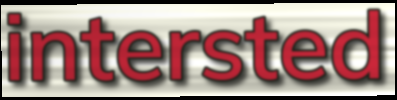
intersted